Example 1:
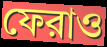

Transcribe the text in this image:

ফেরাও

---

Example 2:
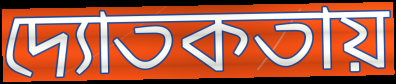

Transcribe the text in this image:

দ্যোতকতায়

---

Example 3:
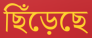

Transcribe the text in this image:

ছিঁড়েছে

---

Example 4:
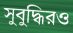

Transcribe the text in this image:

সুবুদ্ধিরও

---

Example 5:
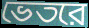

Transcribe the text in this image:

ভেতরে